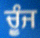
ਚੂੰਜ